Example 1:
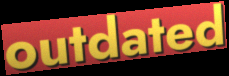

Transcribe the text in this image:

outdated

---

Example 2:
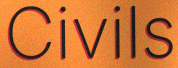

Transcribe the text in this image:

Civils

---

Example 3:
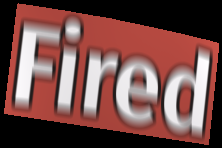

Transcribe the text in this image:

Fired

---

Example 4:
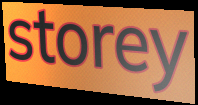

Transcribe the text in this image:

storey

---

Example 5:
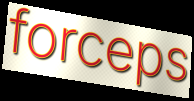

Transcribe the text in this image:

forceps